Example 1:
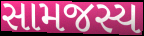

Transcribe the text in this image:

સામજસ્ય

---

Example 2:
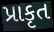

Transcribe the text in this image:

પ્રાકૃત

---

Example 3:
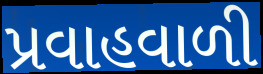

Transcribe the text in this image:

પ્રવાહવાળી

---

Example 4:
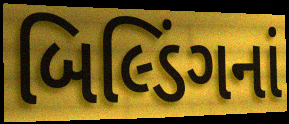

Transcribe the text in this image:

બિલ્ડિંગનાં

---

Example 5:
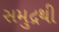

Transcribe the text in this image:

સમુદ્રથી